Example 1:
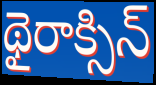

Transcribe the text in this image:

థైరాక్సిన్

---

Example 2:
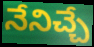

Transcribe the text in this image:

నేనిచ్చే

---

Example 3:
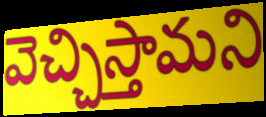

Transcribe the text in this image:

వెచ్చిస్తామని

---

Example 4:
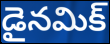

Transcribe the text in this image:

డైనమిక్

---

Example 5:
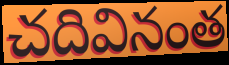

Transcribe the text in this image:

చదివినంత